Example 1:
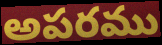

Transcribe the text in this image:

అపరము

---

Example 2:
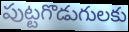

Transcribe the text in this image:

పుట్టగొడుగులకు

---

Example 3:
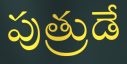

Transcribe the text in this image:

పుత్రుడే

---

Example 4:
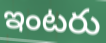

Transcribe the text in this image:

ఇంటరు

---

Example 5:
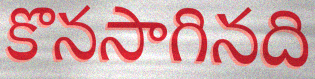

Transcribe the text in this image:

కొనసాగినది